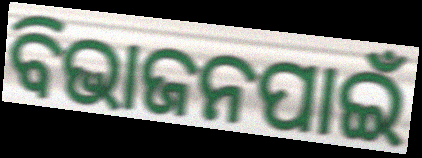
ବିଭାଜନପାଇଁ